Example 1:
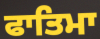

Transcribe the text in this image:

ਫਾਤਿਮਾ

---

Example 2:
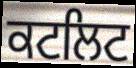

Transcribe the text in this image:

ਕਟਲਿਟ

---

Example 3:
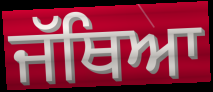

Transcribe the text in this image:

ਜੱਥਿਆ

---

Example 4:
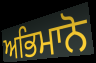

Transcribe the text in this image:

ਅਭਿਮਾਨੋ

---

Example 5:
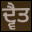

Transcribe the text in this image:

ਦ੍ਵੈਤ